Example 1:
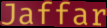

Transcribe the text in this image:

Jaffar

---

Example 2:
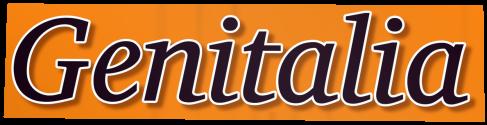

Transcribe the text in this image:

Genitalia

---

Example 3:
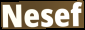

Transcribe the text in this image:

Nesef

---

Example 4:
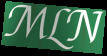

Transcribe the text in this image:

MLN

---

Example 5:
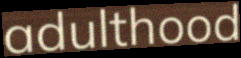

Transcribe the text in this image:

adulthood